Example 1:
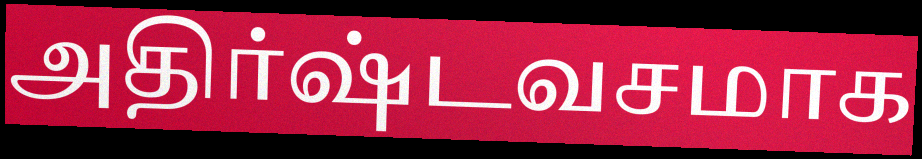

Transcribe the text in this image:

அதிர்ஷ்டவசமாக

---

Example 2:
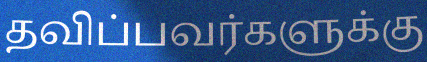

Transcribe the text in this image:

தவிப்பவர்களுக்கு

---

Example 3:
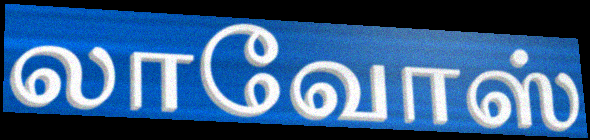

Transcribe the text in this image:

லாவோஸ்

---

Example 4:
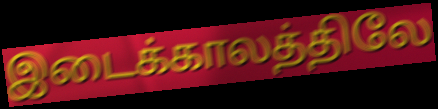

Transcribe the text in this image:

இடைக்காலத்திலே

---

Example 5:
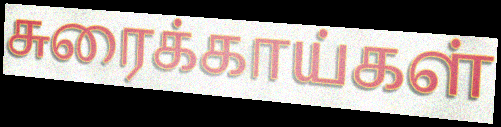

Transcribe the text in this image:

சுரைக்காய்கள்